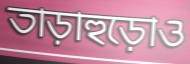
তাড়াহুড়োও